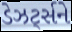
ડેઝર્ટ્સને